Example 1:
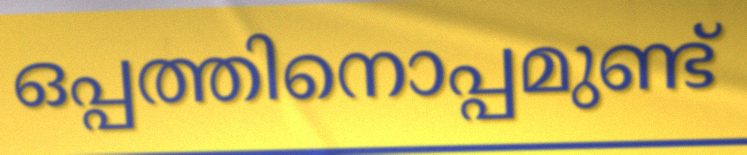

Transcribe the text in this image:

ഒപ്പത്തിനൊപ്പമുണ്ട്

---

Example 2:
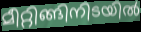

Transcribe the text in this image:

മീറ്റിങ്ങിനിടയിൽ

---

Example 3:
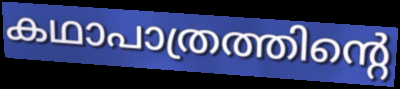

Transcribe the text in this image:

കഥാപാത്രത്തിന്റെ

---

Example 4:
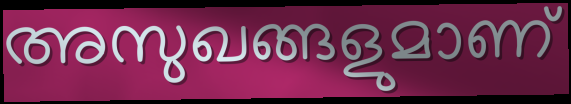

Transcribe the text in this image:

അസുഖങ്ങളുമാണ്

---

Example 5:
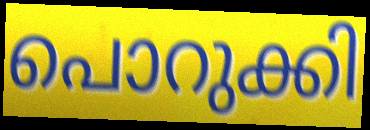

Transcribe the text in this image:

പൊറുക്കി